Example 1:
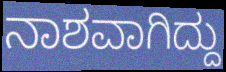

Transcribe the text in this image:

ನಾಶವಾಗಿದ್ದು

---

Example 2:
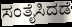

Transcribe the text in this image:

ಸಂತೈಸಿದಡೆ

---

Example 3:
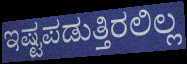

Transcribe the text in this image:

ಇಷ್ಟಪಡುತ್ತಿರಲಿಲ್ಲ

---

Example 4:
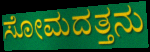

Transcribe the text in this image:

ಸೋಮದತ್ತನು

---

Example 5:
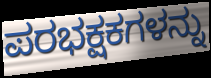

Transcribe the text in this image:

ಪರಭಕ್ಷಕಗಳನ್ನು